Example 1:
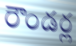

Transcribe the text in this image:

రౌండర్ల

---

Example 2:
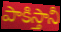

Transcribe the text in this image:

పాకిస్తానీ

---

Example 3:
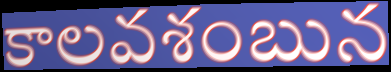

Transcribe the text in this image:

కాలవశంబున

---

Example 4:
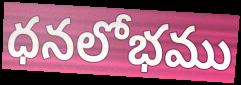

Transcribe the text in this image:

ధనలోభము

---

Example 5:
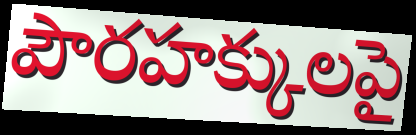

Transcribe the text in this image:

పౌరహక్కులపై